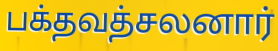
பக்தவத்சலனார்